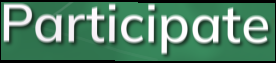
Participate